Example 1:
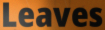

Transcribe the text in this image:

Leaves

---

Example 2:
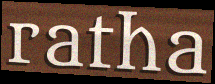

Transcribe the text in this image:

ratha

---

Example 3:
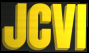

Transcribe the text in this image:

JCVI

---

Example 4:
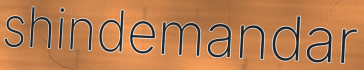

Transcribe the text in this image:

shindemandar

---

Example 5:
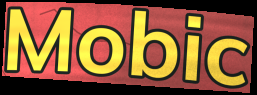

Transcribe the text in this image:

Mobic